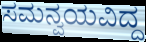
ಸಮನ್ವಯವಿದ್ದ